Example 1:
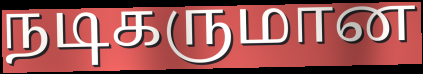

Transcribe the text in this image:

நடிகருமான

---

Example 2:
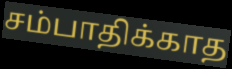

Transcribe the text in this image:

சம்பாதிக்காத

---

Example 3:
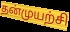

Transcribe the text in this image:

தன்முயற்சி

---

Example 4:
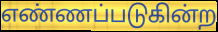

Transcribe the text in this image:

எண்ணப்படுகின்ற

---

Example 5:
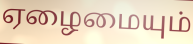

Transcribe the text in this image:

ஏழைமையும்